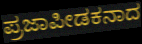
ಪ್ರಜಾಪೀಡಕನಾದ